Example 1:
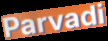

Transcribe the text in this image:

Parvadi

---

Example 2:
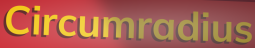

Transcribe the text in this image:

Circumradius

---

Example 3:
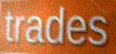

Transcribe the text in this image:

trades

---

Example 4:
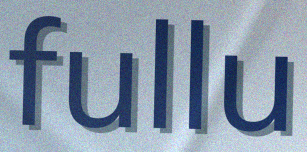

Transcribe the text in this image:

fullu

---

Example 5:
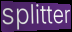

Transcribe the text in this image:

splitter